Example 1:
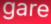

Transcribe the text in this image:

gare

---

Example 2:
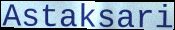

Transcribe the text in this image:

Astaksari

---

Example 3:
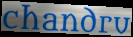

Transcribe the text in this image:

chandru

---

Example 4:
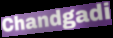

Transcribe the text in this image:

Chandgadi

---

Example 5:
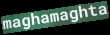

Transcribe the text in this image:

maghamaghta